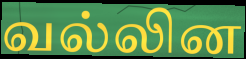
வல்லின